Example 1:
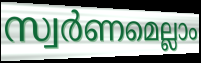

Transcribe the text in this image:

സ്വർണമെല്ലാം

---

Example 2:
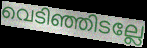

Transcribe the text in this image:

വെടിഞ്ഞിടല്ലേ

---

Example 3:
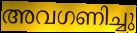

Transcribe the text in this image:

അവഗണിച്ചു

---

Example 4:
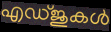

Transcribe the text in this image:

എഡ്ജുകൾ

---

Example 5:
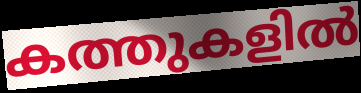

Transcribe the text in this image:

കത്തുകളിൽ